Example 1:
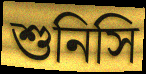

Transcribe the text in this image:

শুনিসি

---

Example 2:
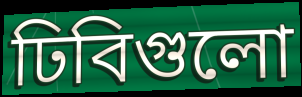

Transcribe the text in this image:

ঢিবিগুলো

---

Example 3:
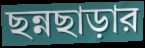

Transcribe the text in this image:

ছন্নছাড়ার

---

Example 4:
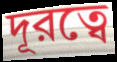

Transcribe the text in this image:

দূরত্বে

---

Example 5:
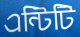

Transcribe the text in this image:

এন্টিটি